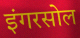
इंगरसोल